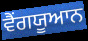
ਵੈਂਗਯੂਆਨ